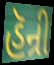
હૅન્રી